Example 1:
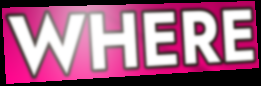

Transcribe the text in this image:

WHERE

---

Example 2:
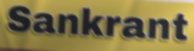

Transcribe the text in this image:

Sankrant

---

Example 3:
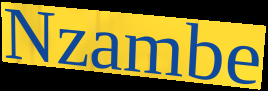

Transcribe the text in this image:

Nzambe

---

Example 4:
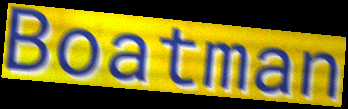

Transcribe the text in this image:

Boatman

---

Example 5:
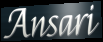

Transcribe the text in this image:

Ansari